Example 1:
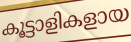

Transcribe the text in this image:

കൂട്ടാളികളായ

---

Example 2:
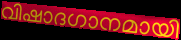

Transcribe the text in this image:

വിഷാദഗാനമായി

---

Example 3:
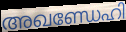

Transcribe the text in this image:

അഖണ്ഡേഹി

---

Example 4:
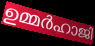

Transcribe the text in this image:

ഉമ്മർഹാജി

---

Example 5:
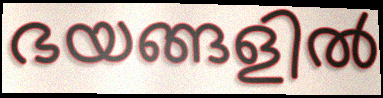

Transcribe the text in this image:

ഭയങ്ങളിൽ